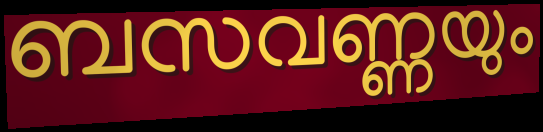
ബസവണ്ണയും